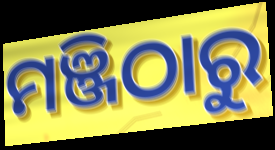
ମଞ୍ଜିଠାରୁ